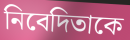
নিবেদিতাকে